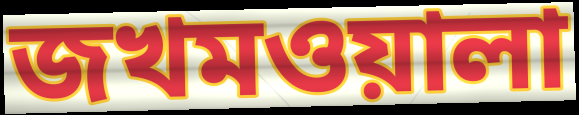
জখমওয়ালা